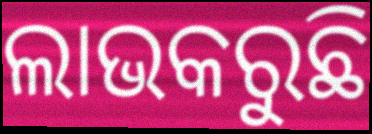
ଲାଭକରୁଛି